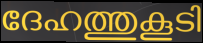
ദേഹത്തുകൂടി